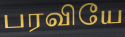
பரவியே